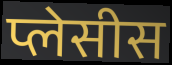
प्लेसीस